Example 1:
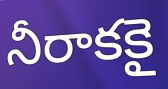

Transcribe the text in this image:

నీరాకకై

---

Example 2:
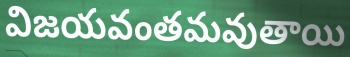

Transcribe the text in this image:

విజయవంతమవుతాయి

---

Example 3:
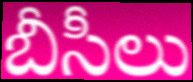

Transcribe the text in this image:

బీసీలు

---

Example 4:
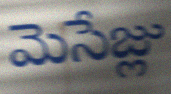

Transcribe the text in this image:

మెసేజ్లు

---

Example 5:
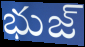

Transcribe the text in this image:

భుజ్